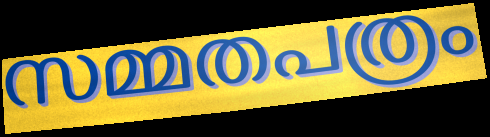
സമ്മതപത്രം